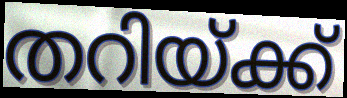
തറിയ്ക്ക്